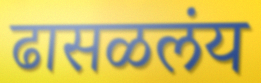
ढासळलंय